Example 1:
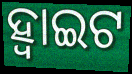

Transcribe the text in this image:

ହ୍ବାଇଟ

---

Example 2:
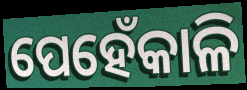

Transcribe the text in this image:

ପେହେଁକାଳି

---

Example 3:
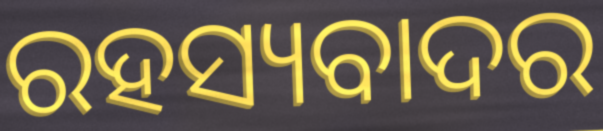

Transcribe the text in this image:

ରହସ୍ୟବାଦର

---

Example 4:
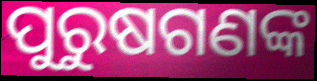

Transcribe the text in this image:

ପୁରୁଷଗଣଙ୍କ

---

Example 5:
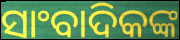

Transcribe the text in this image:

ସାଂବାଦିକଙ୍କ